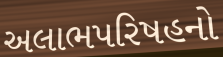
અલાભપરિષહનો